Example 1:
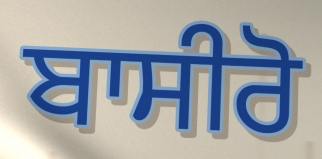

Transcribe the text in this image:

ਬਾਸੀਰੋ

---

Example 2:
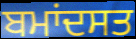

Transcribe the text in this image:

ਬਮਾਂਦਸਤ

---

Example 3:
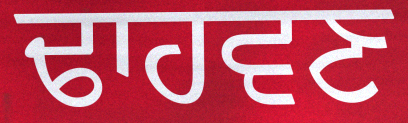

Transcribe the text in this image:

ਢਾਹਵਣ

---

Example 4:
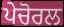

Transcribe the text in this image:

ਪੇਚੋਰਲ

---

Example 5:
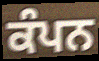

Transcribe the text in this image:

ਕੰਪਨ